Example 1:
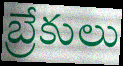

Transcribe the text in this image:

బ్రేకులు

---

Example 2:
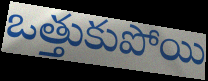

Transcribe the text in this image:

ఒత్తుకుపోయి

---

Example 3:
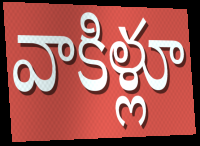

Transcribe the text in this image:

వాకిళ్లూ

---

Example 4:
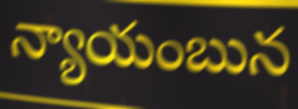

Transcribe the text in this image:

న్యాయంబున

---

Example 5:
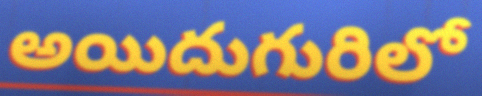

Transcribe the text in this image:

అయిదుగురిలో